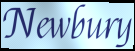
Newbury